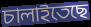
চালাইতেছে